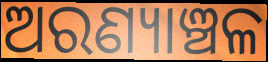
ଅରଣ୍ୟାଞ୍ଚଳ